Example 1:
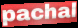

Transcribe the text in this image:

pachal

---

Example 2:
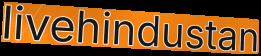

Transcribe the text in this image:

livehindustan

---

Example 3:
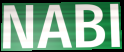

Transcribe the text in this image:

NABI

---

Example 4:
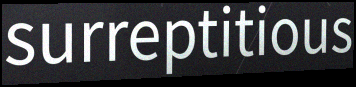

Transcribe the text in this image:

surreptitious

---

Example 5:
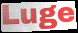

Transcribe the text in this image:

Luge